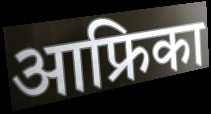
आफ्रिका